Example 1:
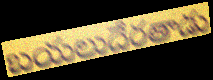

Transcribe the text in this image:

బయలుదేరతాడు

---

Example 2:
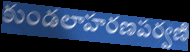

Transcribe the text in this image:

కుండలాహరణపర్వణి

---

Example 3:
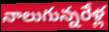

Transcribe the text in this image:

నాలుగున్నరేళ్ల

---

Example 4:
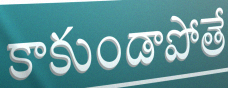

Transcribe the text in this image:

కాకుండాపోతే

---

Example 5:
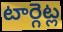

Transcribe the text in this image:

టార్గెట్ల